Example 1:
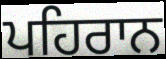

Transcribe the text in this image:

ਪਹਿਰਾਨ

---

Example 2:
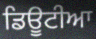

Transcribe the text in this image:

ਡਿਊਟੀਆ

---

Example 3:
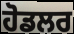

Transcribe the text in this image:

ਹੋਡਲਰ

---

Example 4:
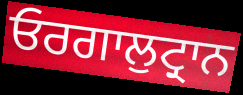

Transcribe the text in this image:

ਓਰਗਾਲੁਟ੍ਰਾਨ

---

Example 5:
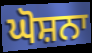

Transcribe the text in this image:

ਘੋਸ਼ਨਾ